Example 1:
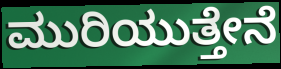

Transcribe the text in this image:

ಮುರಿಯುತ್ತೇನೆ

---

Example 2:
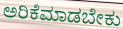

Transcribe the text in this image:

ಅರಿಕೆಮಾಡಬೇಕು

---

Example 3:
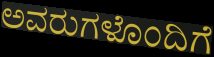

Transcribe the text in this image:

ಅವರುಗಳೊಂದಿಗೆ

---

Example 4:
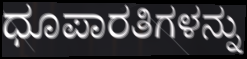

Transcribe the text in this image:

ಧೂಪಾರತಿಗಳನ್ನು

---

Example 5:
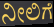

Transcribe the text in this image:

ನೀಲಿಗೆ